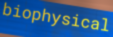
biophysical